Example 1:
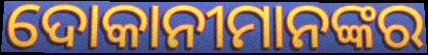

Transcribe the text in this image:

ଦୋକାନୀମାନଙ୍କର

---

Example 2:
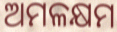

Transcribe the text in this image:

ଅମଳକ୍ଷମ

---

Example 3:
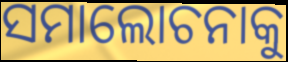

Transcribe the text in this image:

ସମାଲୋଚନାକୁ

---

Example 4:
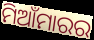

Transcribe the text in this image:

ମିଆଁମାରର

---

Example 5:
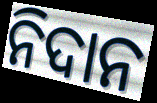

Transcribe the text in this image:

ନିଦାନ